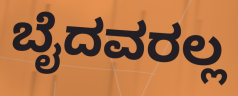
ಬೈದವರಲ್ಲ